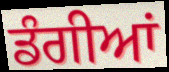
ਡੰਗੀਆਂ